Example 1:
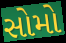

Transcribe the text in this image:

સોમો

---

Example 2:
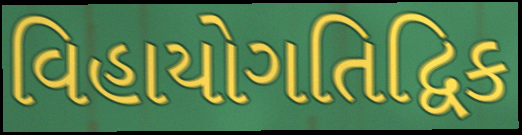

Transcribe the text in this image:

વિહાયોગતિદ્વિક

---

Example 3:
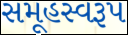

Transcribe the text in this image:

સમૂહસ્વરૂપ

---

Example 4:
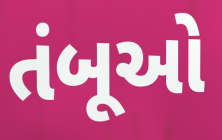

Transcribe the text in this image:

તંબૂઓ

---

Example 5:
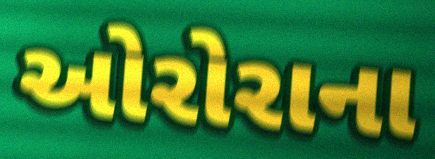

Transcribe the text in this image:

ઓરોરાના